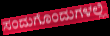
ಸಂದುಗೊಂದುಗಳಲ್ಲಿ